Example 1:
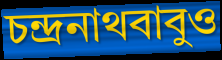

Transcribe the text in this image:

চন্দ্রনাথবাবুও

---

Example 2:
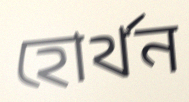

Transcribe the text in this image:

হোর্থন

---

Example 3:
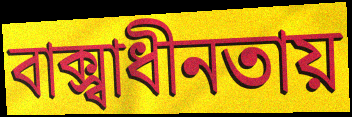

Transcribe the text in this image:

বাক্স্বাধীনতায়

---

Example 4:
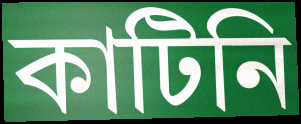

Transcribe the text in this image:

কাটিনি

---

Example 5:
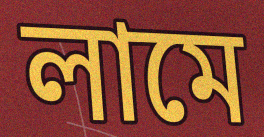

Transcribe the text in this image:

লামে